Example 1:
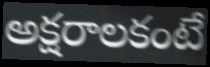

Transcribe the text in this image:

అక్షరాలకంటే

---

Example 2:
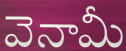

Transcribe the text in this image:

వెనామీ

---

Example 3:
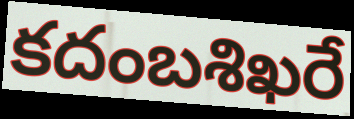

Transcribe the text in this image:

కదంబశిఖరే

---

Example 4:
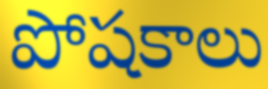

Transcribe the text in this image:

పోషకాలు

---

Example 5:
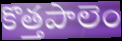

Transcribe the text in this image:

కొత్తపాలెం